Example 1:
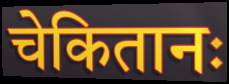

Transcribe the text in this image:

चेकितानः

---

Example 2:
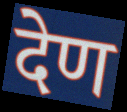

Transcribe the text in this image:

देण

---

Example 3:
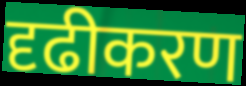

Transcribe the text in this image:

दृढीकरण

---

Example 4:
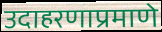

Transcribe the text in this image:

उदाहरणाप्रमाणे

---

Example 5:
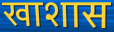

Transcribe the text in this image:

खाशास